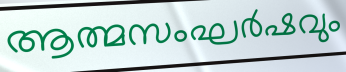
ആത്മസംഘർഷവും